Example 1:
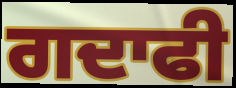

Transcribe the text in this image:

ਗਦਾਫੀ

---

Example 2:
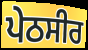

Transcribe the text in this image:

ਪੇਠਸੀਰ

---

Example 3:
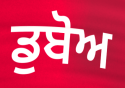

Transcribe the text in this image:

ਡੁਬੋਅ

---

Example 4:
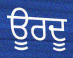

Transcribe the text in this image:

ਊਰਦੂ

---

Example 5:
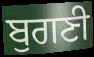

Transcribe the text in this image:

ਬੁਗਣੀ